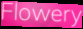
Flowery